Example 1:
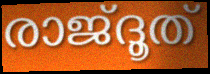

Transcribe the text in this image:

രാജ്ദൂത്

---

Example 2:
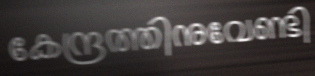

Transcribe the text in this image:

കേന്ദ്രത്തിനുവേണ്ടി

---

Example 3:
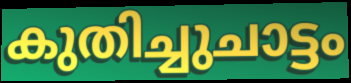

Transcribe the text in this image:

കുതിച്ചുചാട്ടം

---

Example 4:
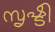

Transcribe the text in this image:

സൃഷ്ടി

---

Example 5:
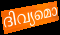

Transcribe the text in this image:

ദിവ്യമൊ